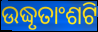
ଉଦ୍ଧୃତାଂଶଟି